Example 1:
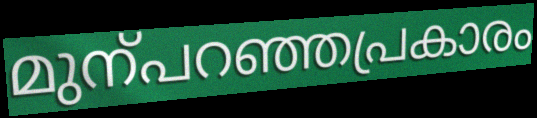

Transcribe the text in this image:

മുന്പറഞ്ഞപ്രകാരം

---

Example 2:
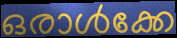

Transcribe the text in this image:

ഒരാൾക്കേ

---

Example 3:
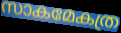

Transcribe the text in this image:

സാകമേകത്ര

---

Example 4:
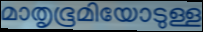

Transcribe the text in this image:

മാതൃഭൂമിയോടുള്ള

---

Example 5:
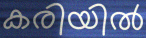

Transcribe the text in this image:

കരിയിൽ